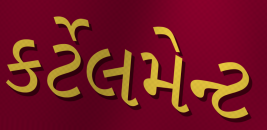
કર્ટેલમેન્ટ